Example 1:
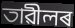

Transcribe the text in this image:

তাৱীলৰ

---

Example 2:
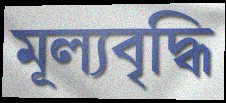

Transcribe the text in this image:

মূল্যবৃদ্ধি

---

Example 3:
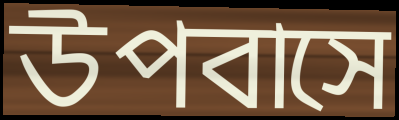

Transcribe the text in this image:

উপবাসে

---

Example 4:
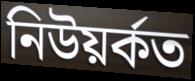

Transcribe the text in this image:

নিউয়ৰ্কত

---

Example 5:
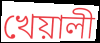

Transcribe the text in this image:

খেয়ালী